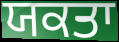
ਯਕਤਾ